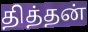
தித்தன்